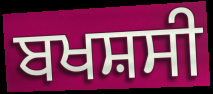
ਬਖਸ਼ਸੀ